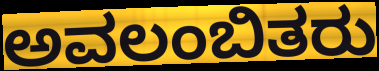
ಅವಲಂಬಿತರು